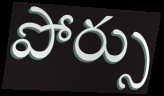
పోర్సు